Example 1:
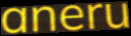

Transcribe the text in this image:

aneru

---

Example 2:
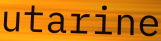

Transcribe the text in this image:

utarine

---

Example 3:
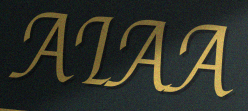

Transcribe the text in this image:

AIAA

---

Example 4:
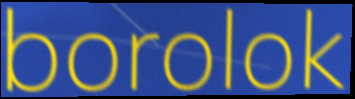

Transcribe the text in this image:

borolok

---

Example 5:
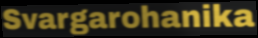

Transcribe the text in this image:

Svargarohanika